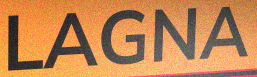
LAGNA